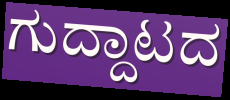
ಗುದ್ದಾಟದ